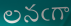
లనఁగా